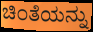
ಚಿಂತೆಯನ್ನು